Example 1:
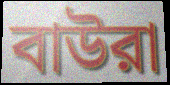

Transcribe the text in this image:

বাউরা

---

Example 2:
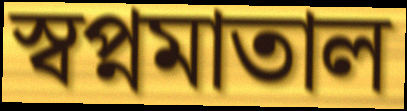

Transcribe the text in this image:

স্বপ্নমাতাল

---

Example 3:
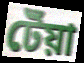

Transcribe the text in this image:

টেঁয়া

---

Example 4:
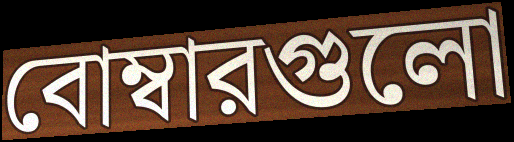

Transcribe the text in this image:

বোম্বারগুলো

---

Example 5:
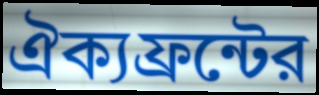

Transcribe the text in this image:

ঐক্যফ্রন্টের